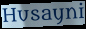
Husayni